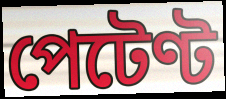
পেটেণ্ট